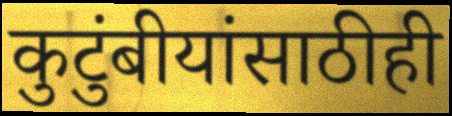
कुटुंबीयांसाठीही